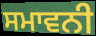
ਸਮਾਵਨੀ